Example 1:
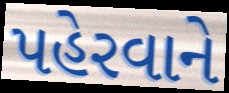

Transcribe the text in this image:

પહેરવાને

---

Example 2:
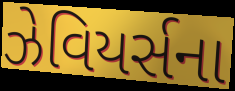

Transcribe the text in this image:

ઝેવિયર્સના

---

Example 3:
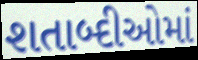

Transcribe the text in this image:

શતાબ્દીઓમાં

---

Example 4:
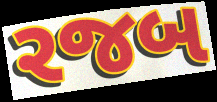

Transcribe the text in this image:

રજબ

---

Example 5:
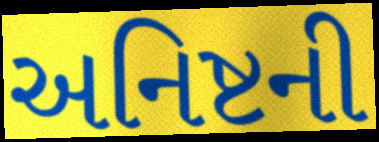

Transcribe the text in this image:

અનિષ્ટની